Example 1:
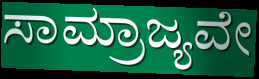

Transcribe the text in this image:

ಸಾಮ್ರಾಜ್ಯವೇ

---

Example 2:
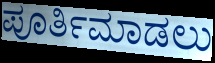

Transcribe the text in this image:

ಪೂರ್ತಿಮಾಡಲು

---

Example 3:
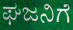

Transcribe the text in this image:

ಘಜನಿಗೆ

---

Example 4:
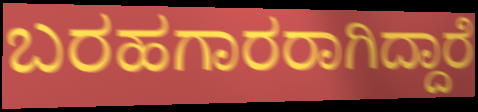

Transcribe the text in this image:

ಬರಹಗಾರರಾಗಿದ್ದಾರೆ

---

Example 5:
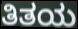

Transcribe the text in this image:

ತಿತಯ